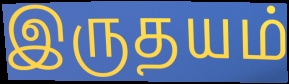
இருதயம்